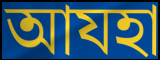
আযহা